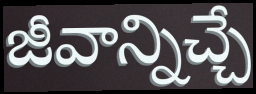
జీవాన్నిచ్చే